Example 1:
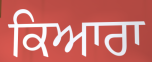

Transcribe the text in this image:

ਕਿਆਰਾ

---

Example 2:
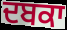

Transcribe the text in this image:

ਦਬਕਾ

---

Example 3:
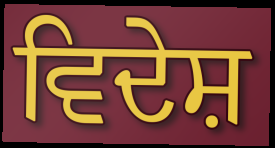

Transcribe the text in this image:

ਵਿਦੇਸ਼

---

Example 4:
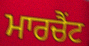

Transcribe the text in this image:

ਮਾਰਚੈਂਟ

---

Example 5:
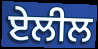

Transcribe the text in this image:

ਏਲੀਲ